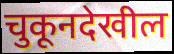
चुकूनदेखील